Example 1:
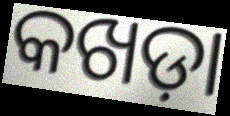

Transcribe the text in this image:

କଖଡ଼ା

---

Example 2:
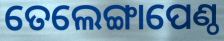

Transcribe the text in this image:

ତେଲେଙ୍ଗାପେଣ୍ଠ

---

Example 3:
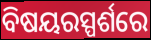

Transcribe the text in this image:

ବିଷୟରସ୍ପର୍ଶରେ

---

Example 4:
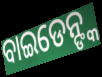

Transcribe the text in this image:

ବାଇଡେନ୍ଙ୍କ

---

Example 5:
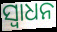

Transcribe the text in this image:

ସ୍ଵାଧନ